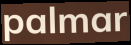
palmar